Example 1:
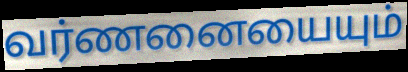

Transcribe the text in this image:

வர்ணனையையும்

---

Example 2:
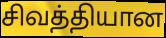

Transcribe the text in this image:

சிவத்தியான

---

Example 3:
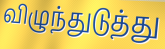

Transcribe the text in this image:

விழுந்துடுத்து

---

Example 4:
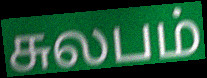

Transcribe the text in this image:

சுலபம்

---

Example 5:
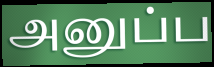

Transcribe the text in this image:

அனுப்ப